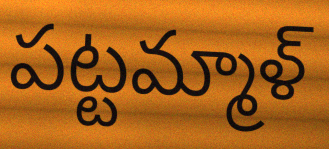
పట్టమ్మాళ్